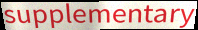
supplementary